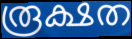
രൂക്ഷത